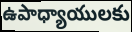
ఉపాధ్యాయులకు